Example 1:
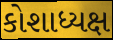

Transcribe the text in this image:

કોશાધ્યક્ષ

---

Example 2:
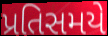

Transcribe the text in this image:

પ્રતિસમયે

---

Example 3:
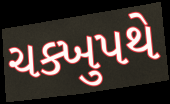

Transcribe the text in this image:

ચક્ખુપથે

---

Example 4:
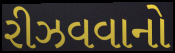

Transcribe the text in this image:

રીઝવવાનો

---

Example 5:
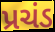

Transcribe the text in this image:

પ્રચંડ